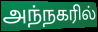
அந்நகரில்